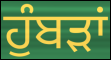
ਹੁੰਬੜਾਂ